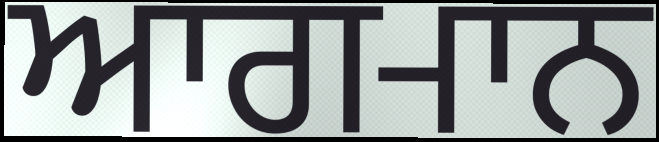
ਆਗ੍ਮਾਨ